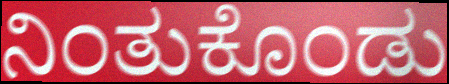
ನಿಂತುಕೊಂಡು